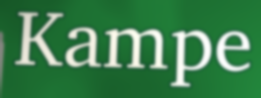
Kampe